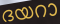
ദയറാ